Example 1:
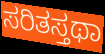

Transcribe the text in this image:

ಸರಿತಸ್ತಥಾ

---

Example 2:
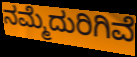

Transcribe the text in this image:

ನಮ್ಮೆದುರಿಗಿವೆ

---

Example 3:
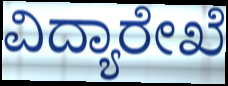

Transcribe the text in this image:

ವಿದ್ಯಾರೇಖೆ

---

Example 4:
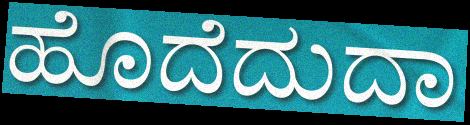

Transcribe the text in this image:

ಹೊದೆದುದಾ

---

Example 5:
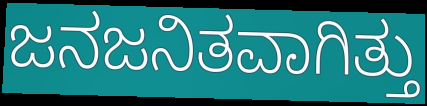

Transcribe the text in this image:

ಜನಜನಿತವಾಗಿತ್ತು